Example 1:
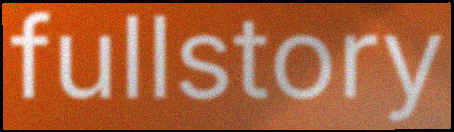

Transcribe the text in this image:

fullstory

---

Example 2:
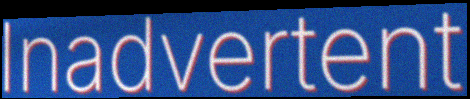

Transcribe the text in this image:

Inadvertent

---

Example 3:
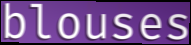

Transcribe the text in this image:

blouses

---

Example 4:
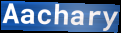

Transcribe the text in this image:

Aachary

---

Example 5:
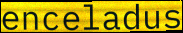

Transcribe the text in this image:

enceladus